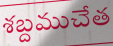
శబ్దముచేత